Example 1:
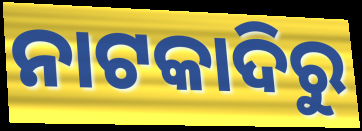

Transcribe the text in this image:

ନାଟକାଦିରୁ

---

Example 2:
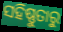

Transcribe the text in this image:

ସହିଷ୍ଣୁତାରୁ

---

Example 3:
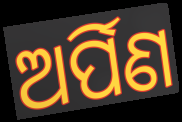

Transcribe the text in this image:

ଅର୍ପିଣ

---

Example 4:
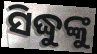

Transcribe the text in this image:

ସିଦ୍ଧୁଙ୍କୁ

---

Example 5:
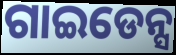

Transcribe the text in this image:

ଗାଇଡେନ୍ସ